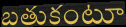
బతుకంటూ